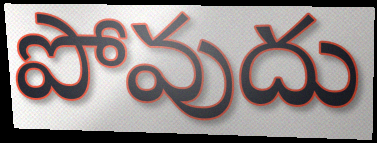
పోవుదు